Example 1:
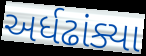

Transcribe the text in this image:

અર્ધઢાંક્યા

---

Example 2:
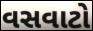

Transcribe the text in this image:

વસવાટો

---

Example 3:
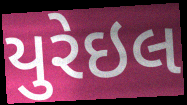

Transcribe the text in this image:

યુરેઇલ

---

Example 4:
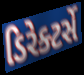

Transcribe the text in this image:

ડિરેક્ટર્સે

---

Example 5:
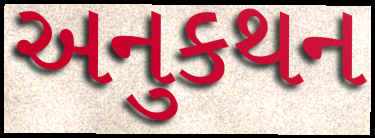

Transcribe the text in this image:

અનુકથન